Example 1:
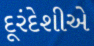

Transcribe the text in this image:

દૂરંદેશીએ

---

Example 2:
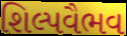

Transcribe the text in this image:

શિલ્પવૈભવ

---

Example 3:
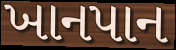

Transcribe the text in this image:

ખાનપાન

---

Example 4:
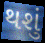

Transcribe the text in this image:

થશું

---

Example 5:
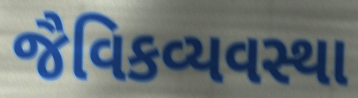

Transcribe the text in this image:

જૈવિકવ્યવસ્થા